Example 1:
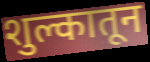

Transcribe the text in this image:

शुल्कातून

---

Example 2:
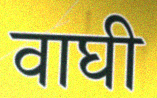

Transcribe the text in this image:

वाघी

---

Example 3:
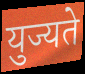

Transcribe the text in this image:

युज्यते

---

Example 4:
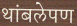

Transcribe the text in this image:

थांबलेपण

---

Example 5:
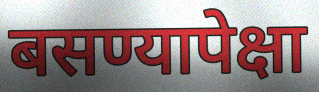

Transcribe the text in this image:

बसण्यापेक्षा